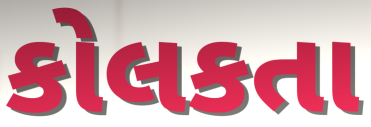
કોલકતા